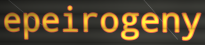
epeirogeny